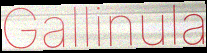
Gallinula